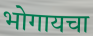
भोगायचा